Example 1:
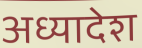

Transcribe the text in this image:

अध्यादेश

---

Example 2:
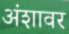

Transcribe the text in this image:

अंशावर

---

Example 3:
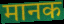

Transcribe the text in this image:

मानक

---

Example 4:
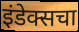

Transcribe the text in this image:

इंडेक्सचा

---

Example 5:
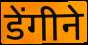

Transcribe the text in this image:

डेंगीने